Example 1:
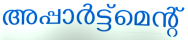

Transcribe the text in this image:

അപ്പാർട്ട്മെന്റ്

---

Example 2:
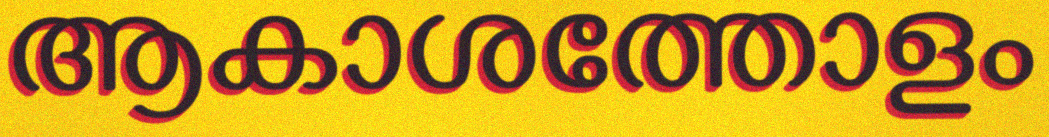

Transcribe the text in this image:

ആകാശത്തോളം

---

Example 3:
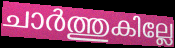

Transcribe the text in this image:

ചാർത്തുകില്ലേ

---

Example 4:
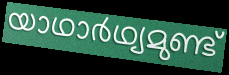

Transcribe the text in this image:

യാഥാർഥ്യമുണ്ട്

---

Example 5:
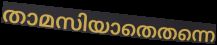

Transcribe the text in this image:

താമസിയാതെതന്നെ